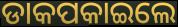
ଡାକପକାଇଲେ